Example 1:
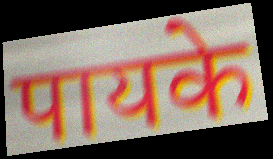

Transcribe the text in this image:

पायके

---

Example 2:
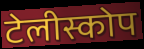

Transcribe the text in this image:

टेलीस्कोप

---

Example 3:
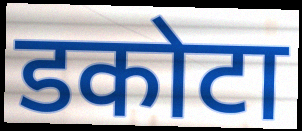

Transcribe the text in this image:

डकोटा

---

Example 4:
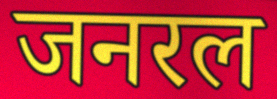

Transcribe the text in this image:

जनरल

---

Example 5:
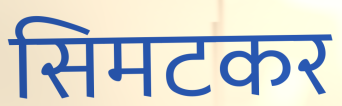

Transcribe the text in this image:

सिमटकर